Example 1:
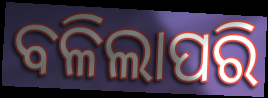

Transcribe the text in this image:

ବଳିଲାପରି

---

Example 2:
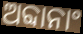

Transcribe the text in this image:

ଅବ୍ଦାନାଂ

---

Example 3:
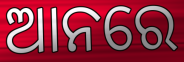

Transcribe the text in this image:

ଆନରେ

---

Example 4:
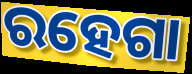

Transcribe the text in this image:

ରହେଗା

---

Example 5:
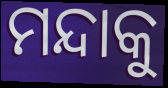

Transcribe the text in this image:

ମନ୍ଦାକୁ